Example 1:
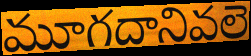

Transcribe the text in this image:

మూగదానివలె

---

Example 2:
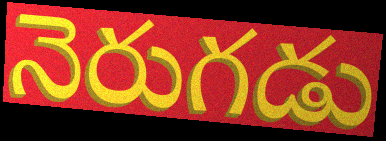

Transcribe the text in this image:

నెరుగడు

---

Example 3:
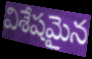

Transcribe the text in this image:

విశేషమైన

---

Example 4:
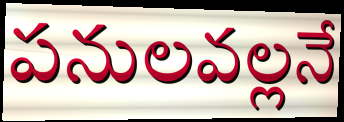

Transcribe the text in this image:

పనులవల్లనే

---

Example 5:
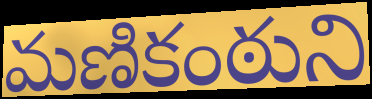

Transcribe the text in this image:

మణికంఠుని